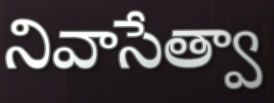
నివాసేత్వా